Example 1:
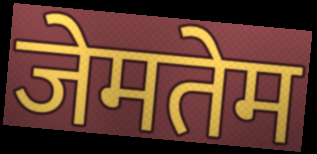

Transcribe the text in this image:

जेमतेम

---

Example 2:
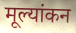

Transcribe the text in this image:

मूल्यांकन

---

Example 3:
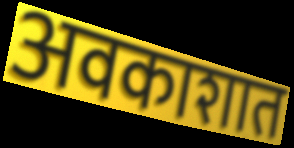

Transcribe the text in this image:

अवकाशात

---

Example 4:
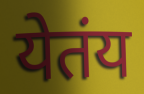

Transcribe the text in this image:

येतंय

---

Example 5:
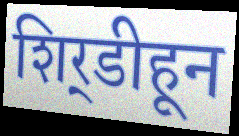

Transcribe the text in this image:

शिर्डीहून